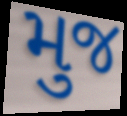
મુજ